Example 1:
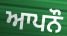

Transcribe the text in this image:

ਆਪਨੌ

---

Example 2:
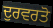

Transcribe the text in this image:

ਦੁਰਵਰਤੋ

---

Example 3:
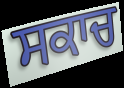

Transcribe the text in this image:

ਸਕਾਚ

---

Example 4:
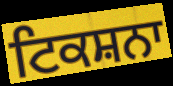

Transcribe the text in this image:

ਟਿਕਸ਼ਨਾ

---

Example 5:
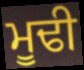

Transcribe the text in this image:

ਮੂਢੀ